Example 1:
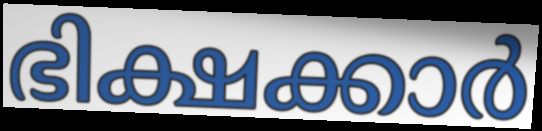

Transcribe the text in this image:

ഭിക്ഷക്കാർ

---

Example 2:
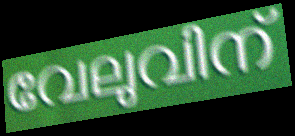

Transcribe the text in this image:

വേലുവിന്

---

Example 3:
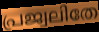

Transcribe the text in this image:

പ്രജ്വലിതേ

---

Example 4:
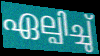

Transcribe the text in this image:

ഏല്പിച്ചു്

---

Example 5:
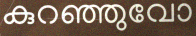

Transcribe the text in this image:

കുറഞ്ഞുവോ